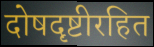
दोषदृष्टीरहित